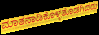
ಮಾತನಾಡಿಕೊಳ್ಳತೊಡಗಿದರು